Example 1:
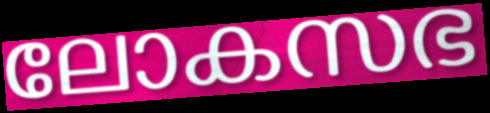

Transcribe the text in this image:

ലോകസഭ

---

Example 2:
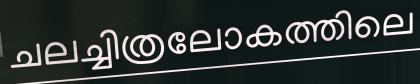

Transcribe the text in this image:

ചലച്ചിത്രലോകത്തിലെ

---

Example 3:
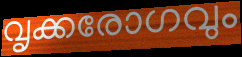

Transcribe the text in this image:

വൃക്കരോഗവും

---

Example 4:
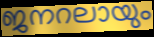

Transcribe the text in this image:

ജനറലായും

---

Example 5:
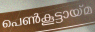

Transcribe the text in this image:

പെൺകൂട്ടായ്മ